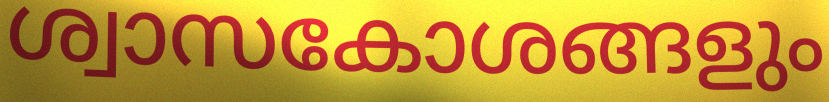
ശ്വാസകോശങ്ങളും